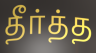
தீர்த்த